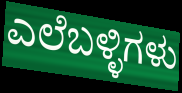
ಎಲೆಬಳ್ಳಿಗಳು